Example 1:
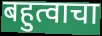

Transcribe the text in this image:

बहुत्वाचा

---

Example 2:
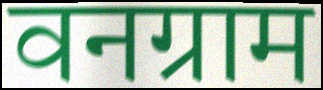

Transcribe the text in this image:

वनग्राम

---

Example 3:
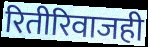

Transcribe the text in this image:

रितीरिवाजही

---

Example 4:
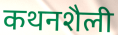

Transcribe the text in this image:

कथनशैली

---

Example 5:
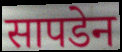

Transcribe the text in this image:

सापडेन